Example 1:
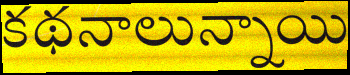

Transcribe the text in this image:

కథనాలున్నాయి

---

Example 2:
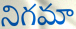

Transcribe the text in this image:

నిగమా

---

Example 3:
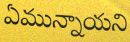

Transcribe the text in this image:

ఏమున్నాయని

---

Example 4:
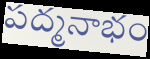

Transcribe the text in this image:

పద్మనాభం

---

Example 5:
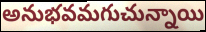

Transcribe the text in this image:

అనుభవమగుచున్నాయి